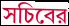
সচিবের